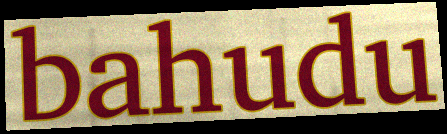
bahudu